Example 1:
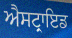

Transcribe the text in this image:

ਐਸਟ੍ਰਾਇਡ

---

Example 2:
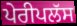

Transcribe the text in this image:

ਪੇਰੀਪਲੱਸ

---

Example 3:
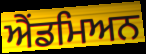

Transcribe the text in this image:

ਐਂਡਮਿਅਨ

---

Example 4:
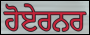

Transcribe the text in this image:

ਹੋਏਰਨਰ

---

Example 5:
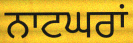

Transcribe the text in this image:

ਨਾਟਘਰਾਂ